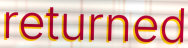
returned